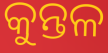
କୁନ୍ତଳ